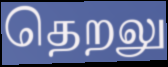
தெறலு